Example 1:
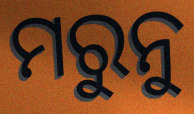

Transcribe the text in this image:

ମରୁନୁ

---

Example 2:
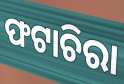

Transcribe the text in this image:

ଫଟାଚିରା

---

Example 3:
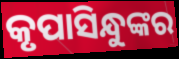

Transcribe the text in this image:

କୃପାସିନ୍ଧୁଙ୍କର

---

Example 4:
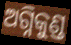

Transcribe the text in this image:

ଅଗ୍ନିକୁଣ୍ଡ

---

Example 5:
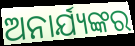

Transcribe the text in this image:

ଅନାର୍ଯ୍ୟଙ୍କର